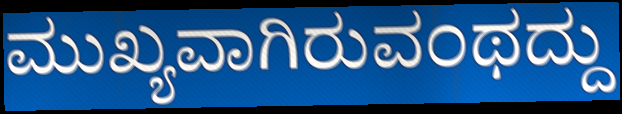
ಮುಖ್ಯವಾಗಿರುವಂಥದ್ದು